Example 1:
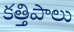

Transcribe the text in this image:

కత్తిపాలు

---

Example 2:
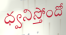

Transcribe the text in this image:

ధ్వనిస్తోందో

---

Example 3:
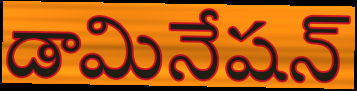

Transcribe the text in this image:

డామినేషన్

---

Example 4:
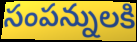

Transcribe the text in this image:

సంపన్నులకి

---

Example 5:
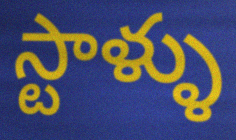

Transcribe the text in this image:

స్టాళ్ళు